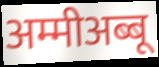
अम्मीअब्बू